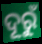
ଦୂରୁଁ